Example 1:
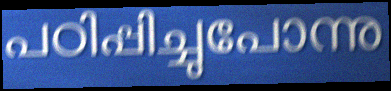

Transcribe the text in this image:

പഠിപ്പിച്ചുപോന്നു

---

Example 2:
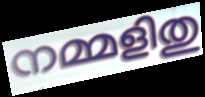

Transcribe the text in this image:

നമ്മളിതു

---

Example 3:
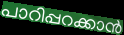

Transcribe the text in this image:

പാറിപ്പറക്കാൻ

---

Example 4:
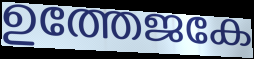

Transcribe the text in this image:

ഉത്തേജകേ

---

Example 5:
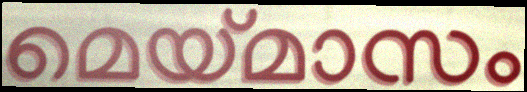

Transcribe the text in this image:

മെയ്മാസം